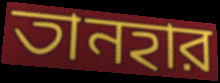
তানহার